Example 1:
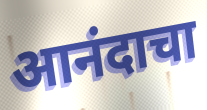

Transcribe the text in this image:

आनंदाचा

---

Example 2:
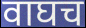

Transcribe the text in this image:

वाघच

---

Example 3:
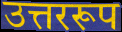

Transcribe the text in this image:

उत्तररूप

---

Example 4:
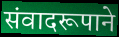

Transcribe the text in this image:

संवादरूपाने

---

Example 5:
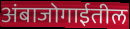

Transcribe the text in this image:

अंबाजोगाईतील